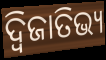
ଦ୍ବିଜାତିଭ୍ୟ